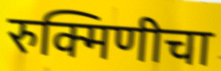
रुक्मिणीचा